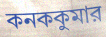
কনককুমার